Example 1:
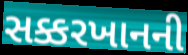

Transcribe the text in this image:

સક્કરખાનની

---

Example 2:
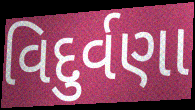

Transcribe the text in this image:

વિદુર્વણા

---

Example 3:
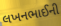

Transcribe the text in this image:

લખનભાઈની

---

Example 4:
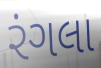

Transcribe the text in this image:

રંગલા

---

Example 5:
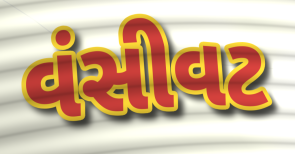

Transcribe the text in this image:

વંસીવટ